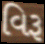
વિરૂ